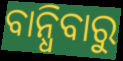
ବାନ୍ଧିବାରୁ